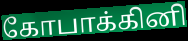
கோபாக்கினி